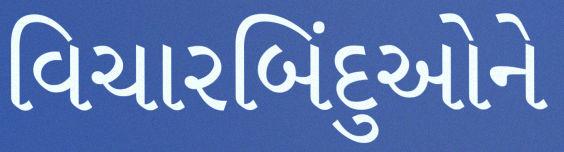
વિચારબિંદુઓને